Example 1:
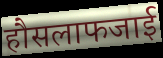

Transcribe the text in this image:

हौसलाफजाई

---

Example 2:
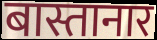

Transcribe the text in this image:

बास्तानार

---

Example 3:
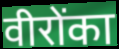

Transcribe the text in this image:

वीरोंका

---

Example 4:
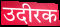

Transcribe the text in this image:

उदीरक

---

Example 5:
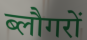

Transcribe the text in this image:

ब्लौगरों